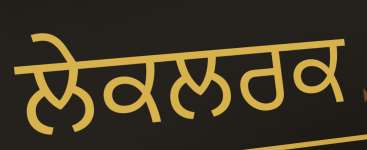
ਲੇਕਲਰਕ